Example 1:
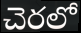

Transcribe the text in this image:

చెరలో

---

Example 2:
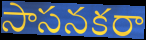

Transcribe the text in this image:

సాసనకరా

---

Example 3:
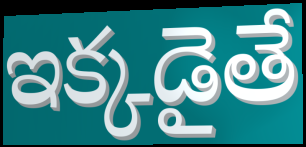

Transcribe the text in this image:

ఇక్కడైతే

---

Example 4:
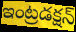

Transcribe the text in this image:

ఇంట్రడక్షన్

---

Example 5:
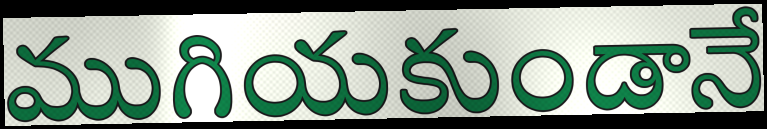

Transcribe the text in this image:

ముగియకుండానే